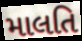
માલતિ